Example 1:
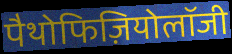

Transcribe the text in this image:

पैथोफिज़ियोलॉजी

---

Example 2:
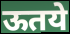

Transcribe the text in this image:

ऊतये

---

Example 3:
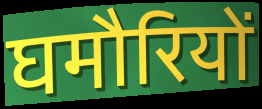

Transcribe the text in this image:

घमौरियों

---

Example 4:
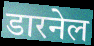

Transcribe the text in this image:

डारनेल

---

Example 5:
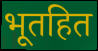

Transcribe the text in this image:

भूतहित